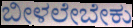
ಬೀಳಲೇಬೇಕು